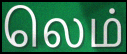
லெம்